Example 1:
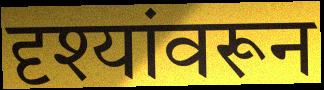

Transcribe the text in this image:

दृश्यांवरून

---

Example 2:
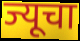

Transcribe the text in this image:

ज्यूचा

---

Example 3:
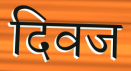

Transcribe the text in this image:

दिवज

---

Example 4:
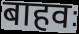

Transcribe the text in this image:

बाहवः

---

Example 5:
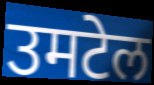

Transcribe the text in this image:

उमटेल